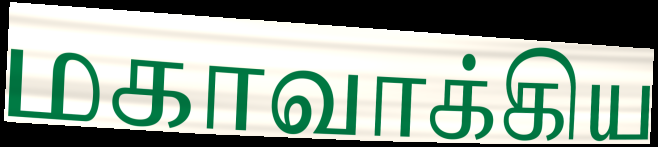
மகாவாக்கிய